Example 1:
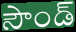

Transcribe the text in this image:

సౌండ్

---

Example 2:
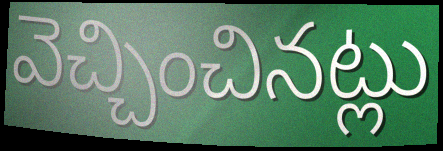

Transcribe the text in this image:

వెచ్చించినట్లు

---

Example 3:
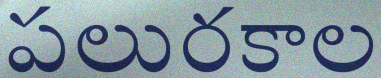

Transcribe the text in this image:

పలురకాల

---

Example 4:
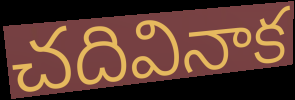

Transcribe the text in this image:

చదివినాక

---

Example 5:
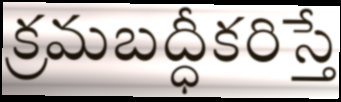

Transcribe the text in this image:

క్రమబద్ధీకరిస్తే